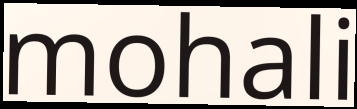
mohali